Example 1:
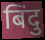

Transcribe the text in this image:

बिंदु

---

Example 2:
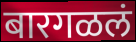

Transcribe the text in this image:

बारगळलं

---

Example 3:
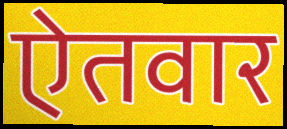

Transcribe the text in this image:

ऐतवार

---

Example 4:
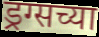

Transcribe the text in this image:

ड्रग्सच्या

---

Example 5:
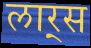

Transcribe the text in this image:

लार्स